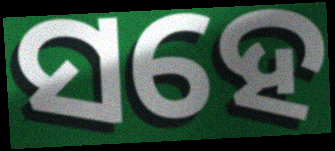
ସହେ